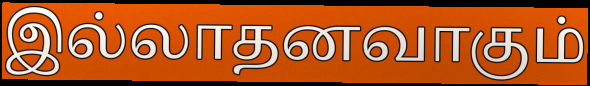
இல்லாதனவாகும்